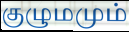
குழுமமும்